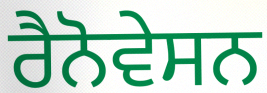
ਰੈਨੋਵੇਸਨ